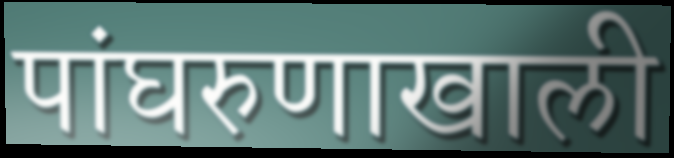
पांघरुणाखाली